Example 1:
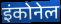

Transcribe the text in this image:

इंकोनेल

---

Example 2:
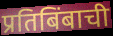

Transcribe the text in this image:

प्रतिबिंबाची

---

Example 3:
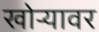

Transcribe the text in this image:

खोऱ्यावर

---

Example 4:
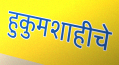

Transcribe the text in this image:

हुकुमशाहीचे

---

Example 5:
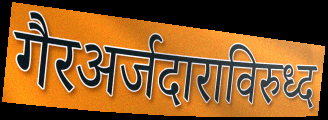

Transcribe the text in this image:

गैरअर्जदाराविरुध्द